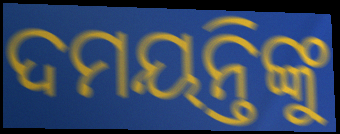
ଦମୟନ୍ତିଙ୍କୁ